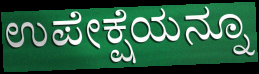
ಉಪೇಕ್ಷೆಯನ್ನೂ